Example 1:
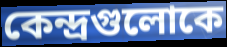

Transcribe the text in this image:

কেন্দ্রগুলোকে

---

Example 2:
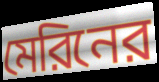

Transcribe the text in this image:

মেরিনের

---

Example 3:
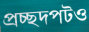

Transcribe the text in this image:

প্রচ্ছদপটও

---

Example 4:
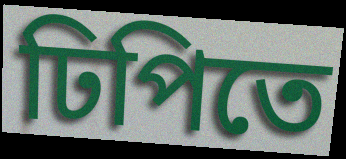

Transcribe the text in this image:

ঢিপিতে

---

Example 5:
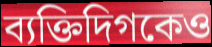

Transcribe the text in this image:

ব্যক্তিদিগকেও